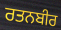
ਰਤਨਬੀਰ